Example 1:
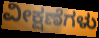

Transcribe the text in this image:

ವೀಕ್ಷಣೆಗಳು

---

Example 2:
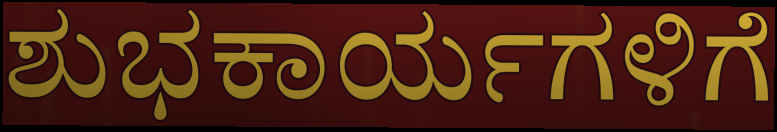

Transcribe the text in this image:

ಶುಭಕಾರ್ಯಗಳಿಗೆ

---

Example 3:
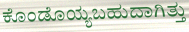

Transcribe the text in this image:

ಕೊಂಡೊಯ್ಯಬಹುದಾಗಿತ್ತು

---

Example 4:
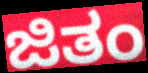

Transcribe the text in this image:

ಜಿತಂ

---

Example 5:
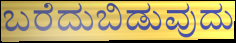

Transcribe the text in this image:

ಬರೆದುಬಿಡುವುದು